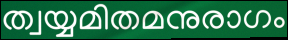
ത്വയ്യമിതമനുരാഗം